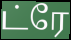
ட்ரே